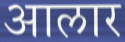
आलार